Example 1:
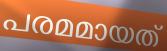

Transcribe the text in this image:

പരമമായത്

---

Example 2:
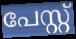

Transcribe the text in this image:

പേസ്റ്റ്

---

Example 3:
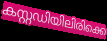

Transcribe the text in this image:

കസ്റ്റഡിയിലിരിക്കെ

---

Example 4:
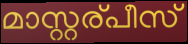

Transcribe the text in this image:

മാസ്റ്റര്പീസ്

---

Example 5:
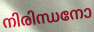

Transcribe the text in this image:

നിരിന്ധനോ